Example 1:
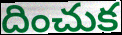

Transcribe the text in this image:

దించుక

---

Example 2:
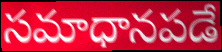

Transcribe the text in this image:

సమాధానపడే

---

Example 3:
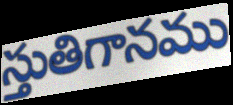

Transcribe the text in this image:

స్తుతిగానము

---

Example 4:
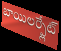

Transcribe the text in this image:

బాయిలర్ప్లేట్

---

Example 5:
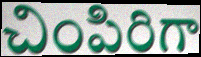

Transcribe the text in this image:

చింపిరిగా